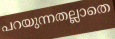
പറയുന്നതല്ലാതെ